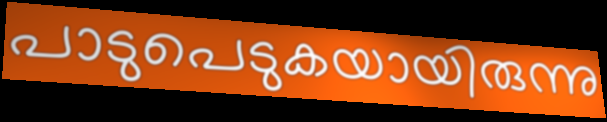
പാടുപെടുകയായിരുന്നു